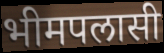
भीमपलासी